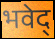
भवेद्